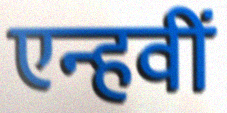
एन्हवीं